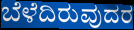
ಬೆಳೆದಿರುವುದರ